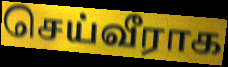
செய்வீராக